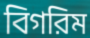
বিগরিম